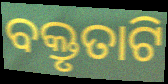
ବକ୍ତୃତାଟି